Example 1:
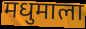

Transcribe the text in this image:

मधुमाला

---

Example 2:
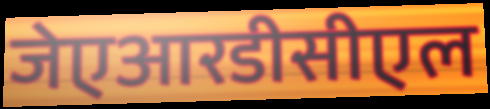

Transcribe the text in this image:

जेएआरडीसीएल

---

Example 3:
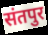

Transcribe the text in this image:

संतपुर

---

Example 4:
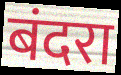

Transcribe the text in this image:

बंदरा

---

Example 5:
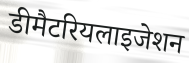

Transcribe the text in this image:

डीमैटरियलाइजेशन